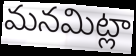
మనమిట్లా